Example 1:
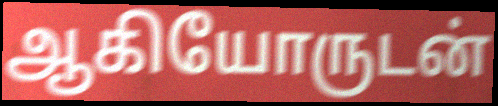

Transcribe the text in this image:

ஆகியோருடன்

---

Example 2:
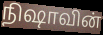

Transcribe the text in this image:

நிஷாவின்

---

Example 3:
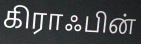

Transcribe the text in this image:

கிராஃபின்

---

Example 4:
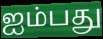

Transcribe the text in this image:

ஐம்பது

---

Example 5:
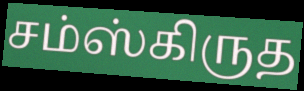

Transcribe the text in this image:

சம்ஸ்கிருத